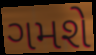
ગમશે